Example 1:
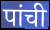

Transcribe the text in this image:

पांची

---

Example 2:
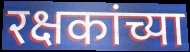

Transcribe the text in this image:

रक्षकांच्या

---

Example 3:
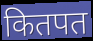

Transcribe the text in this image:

कितपत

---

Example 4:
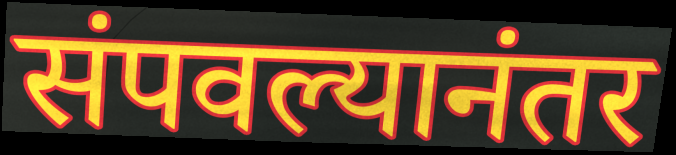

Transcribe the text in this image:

संपवल्यानंतर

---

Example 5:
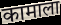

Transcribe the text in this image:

कामाला